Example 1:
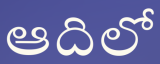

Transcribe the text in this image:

ఆదిలో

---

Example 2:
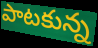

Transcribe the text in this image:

పాటకున్న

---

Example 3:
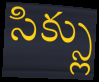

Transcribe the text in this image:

సిక్స్లు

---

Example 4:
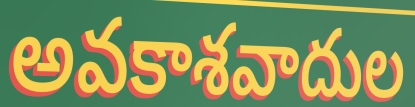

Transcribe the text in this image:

అవకాశవాదుల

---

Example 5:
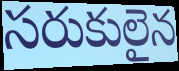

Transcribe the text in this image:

సరుకులైన